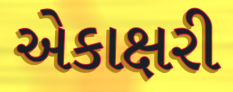
એકાક્ષરી